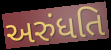
અરુંધતિ